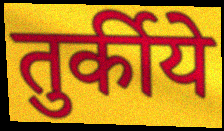
तुर्कीये